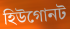
হিউগোনট